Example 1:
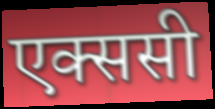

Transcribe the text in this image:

एक्ससी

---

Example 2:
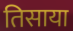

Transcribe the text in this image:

तिसाया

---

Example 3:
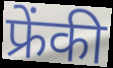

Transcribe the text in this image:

फ्रेंकी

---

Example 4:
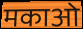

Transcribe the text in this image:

मकाओ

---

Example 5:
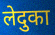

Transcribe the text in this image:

लेदुका